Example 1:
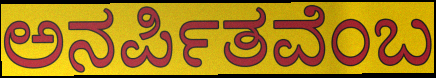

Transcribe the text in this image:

ಅನರ್ಪಿತವೆಂಬ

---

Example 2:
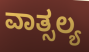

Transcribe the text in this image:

ವಾತ್ಸಲ್ಯ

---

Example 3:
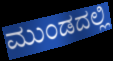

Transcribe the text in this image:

ಮುಂಡದಲ್ಲಿ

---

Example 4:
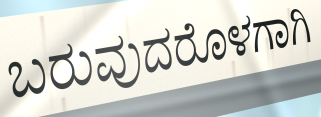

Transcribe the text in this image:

ಬರುವುದರೊಳಗಾಗಿ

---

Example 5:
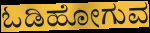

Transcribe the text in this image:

ಓಡಿಹೋಗುವ